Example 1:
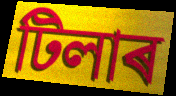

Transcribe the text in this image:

টিলাৰ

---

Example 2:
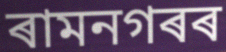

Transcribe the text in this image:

ৰামনগৰৰ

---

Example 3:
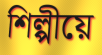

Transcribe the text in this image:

শিল্পীয়ে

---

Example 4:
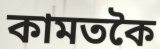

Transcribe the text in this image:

কামতকৈ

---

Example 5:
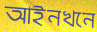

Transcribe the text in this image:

আইনখনে